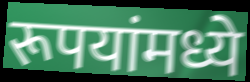
रूपयांमध्ये